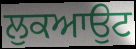
ਲੁਕਆਉਟ